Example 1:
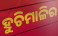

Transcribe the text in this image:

ହୁଚିମାଳିର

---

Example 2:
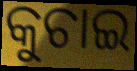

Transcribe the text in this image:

କୁଚାଇ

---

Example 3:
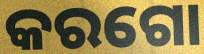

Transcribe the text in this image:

କରଗୋ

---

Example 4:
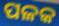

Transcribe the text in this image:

ପଳକ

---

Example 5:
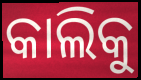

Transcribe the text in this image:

କାଲିକୁ